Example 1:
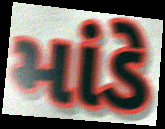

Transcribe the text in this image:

માંડે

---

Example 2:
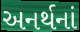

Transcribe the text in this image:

અનર્થનાં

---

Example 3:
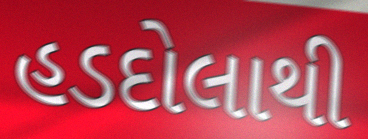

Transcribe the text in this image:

હડદોલાથી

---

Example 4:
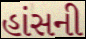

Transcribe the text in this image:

હાંસની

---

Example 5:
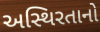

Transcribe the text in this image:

અસ્થિરતાનો